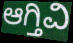
ಆಗ್ತಿವಿ